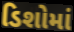
ડિશોમાં